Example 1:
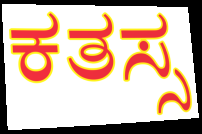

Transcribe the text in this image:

ಕತಸ್ಸ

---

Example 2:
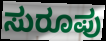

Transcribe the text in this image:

ಸುರೂಪು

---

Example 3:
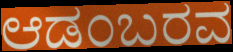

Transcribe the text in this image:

ಆಡಂಬರವ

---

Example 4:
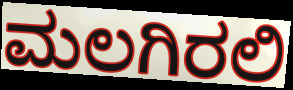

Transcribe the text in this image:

ಮಲಗಿರಲಿ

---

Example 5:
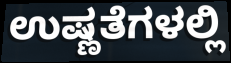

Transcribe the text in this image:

ಉಷ್ಣತೆಗಳಲ್ಲಿ